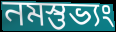
নমস্তুভ্যং